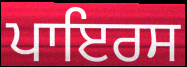
ਪਾਇਰਸ